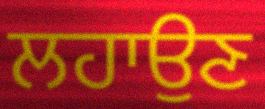
ਲਹਾਉਣ